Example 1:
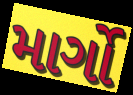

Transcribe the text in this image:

માર્ગો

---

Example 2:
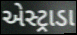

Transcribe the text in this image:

એસ્ટ્રાડા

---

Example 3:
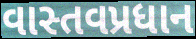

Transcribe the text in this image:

વાસ્તવપ્રધાન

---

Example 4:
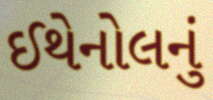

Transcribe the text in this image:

ઈથેનોલનું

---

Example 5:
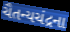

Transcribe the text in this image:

ચૈતન્યચંદ્રના